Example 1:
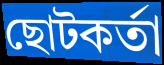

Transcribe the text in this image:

ছোটকর্তা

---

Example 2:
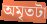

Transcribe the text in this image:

অমৃতটা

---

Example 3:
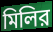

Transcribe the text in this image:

মিলির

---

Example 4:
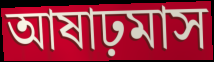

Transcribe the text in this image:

আষাঢ়মাস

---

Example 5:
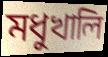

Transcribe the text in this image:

মধুখালি